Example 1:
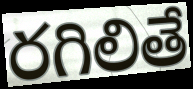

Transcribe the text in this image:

రగిలితే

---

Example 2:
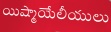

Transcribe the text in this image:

యిష్మాయేలీయులు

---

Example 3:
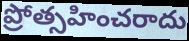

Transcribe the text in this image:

ప్రోత్సహించరాదు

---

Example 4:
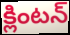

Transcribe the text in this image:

క్లింటన్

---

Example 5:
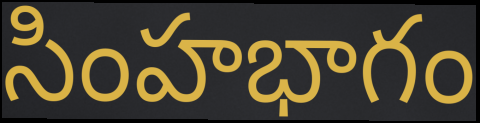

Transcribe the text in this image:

సింహభాగం